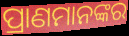
ପ୍ରାଣମାନଙ୍କର